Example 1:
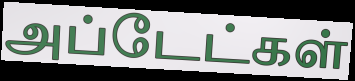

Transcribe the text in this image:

அப்டேட்கள்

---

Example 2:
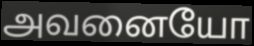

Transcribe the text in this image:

அவனையோ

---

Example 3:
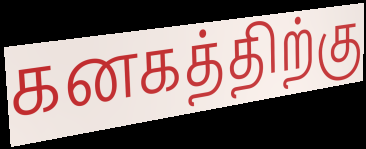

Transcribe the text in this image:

கனகத்திற்கு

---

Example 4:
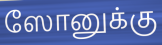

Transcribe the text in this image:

ஸோனுக்கு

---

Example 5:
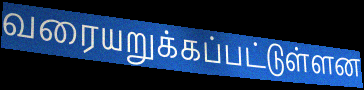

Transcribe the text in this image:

வரையறுக்கப்பட்டுள்ளன